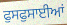
ਫੁਸਫੁਸਾਈਆਂ